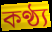
কণ্ঠ্য